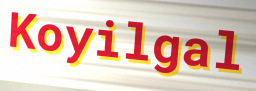
Koyilgal